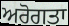
ਅਰੋਗਤਾ